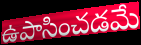
ఉపాసించడమే